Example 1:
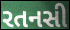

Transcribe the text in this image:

રતનસી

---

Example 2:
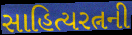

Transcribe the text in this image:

સાહિત્યરત્નની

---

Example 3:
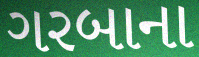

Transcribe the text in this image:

ગરબાના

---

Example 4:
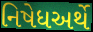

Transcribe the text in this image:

નિષેધઅર્થે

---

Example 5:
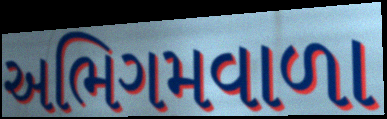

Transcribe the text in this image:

અભિગમવાળા